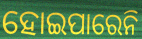
ହୋଇପାରେନି